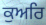
ਕੁਅਰਿ